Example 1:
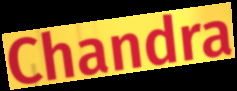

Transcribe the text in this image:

Chandra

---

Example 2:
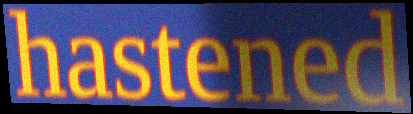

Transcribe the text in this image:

hastened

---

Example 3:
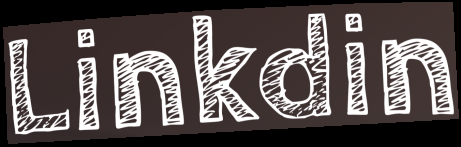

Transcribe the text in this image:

Linkdin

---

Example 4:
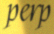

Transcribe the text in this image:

perp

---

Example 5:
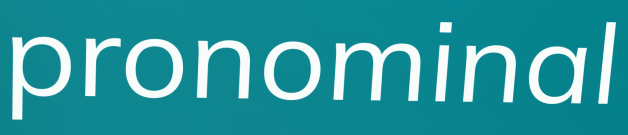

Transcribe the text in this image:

pronominal